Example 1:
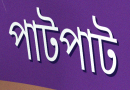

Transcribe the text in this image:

পাটপাট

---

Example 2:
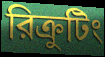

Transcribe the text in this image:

রিক্রুটিং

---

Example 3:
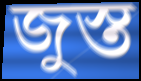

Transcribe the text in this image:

জুস্ত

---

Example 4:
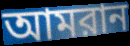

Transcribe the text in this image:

আমরান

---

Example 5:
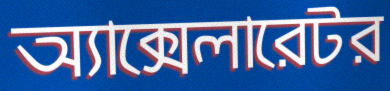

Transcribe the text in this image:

অ্যাক্সেলারেটর